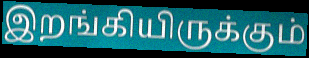
இறங்கியிருக்கும்